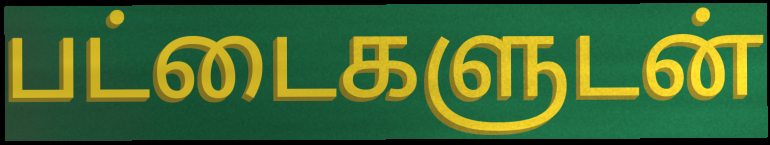
பட்டைகளுடன்